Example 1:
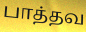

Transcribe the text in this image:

பாத்தவ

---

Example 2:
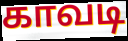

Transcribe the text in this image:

காவடி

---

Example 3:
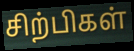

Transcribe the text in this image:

சிற்பிகள்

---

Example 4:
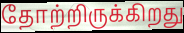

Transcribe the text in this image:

தோற்றிருக்கிறது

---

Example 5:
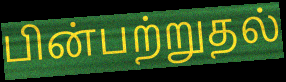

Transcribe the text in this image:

பின்பற்றுதல்